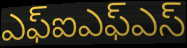
ఎఫ్ఐఎఫ్ఎస్